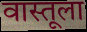
वास्तूला